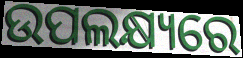
ଉପଲକ୍ଷ୍ୟରେ